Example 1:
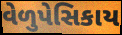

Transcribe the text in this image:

વેળુપેસિકાય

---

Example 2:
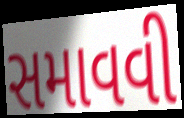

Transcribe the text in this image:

સમાવવી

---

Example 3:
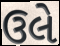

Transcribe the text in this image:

ઉલે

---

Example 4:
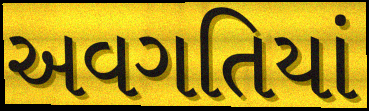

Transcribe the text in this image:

અવગતિયાં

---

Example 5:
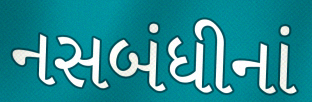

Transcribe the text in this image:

નસબંધીનાં